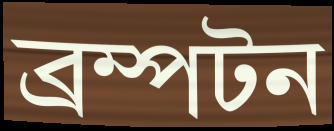
ব্রম্পটন